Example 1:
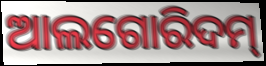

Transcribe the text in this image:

ଆଲଗୋରିଦମ୍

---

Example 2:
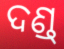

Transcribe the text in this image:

ଦଣ୍ଡ୍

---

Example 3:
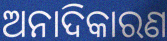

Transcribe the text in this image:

ଅନାଦିକାରଣ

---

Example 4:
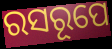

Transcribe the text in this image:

ରସରୂପେ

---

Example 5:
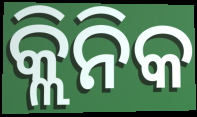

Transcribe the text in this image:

କ୍ଲିନିକ